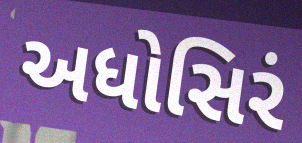
અધોસિરં